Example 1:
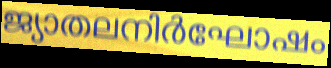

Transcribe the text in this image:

ജ്യാതലനിർഘോഷം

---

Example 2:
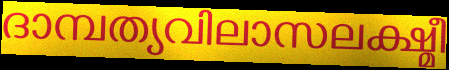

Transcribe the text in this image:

ദാമ്പത്യവിലാസലക്ഷ്മീ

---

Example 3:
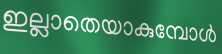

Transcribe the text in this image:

ഇല്ലാതെയാകുമ്പോൾ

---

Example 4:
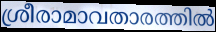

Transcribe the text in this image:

ശ്രീരാമാവതാരത്തിൽ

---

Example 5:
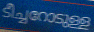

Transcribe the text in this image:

ടീച്ചറോടുള്ള